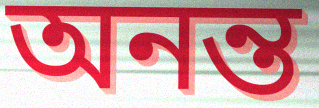
অনন্ত